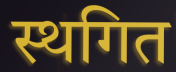
स्थगित